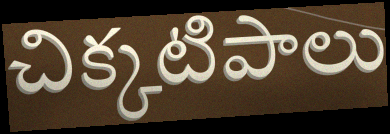
చిక్కటిపాలు